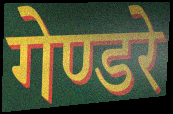
गेण्डरे